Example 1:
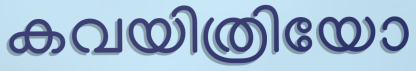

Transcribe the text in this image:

കവയിത്രിയോ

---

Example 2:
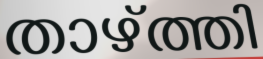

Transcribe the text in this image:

താഴ്ത്തി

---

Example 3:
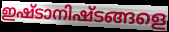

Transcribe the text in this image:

ഇഷ്ടാനിഷ്ടങ്ങളെ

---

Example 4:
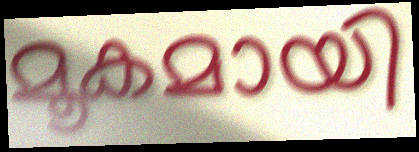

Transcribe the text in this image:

മൂകമായി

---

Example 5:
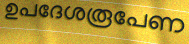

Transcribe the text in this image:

ഉപദേശരൂപേണ